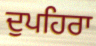
ਦੁਪਹਿਰਾ